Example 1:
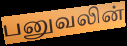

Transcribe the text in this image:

பனுவலின்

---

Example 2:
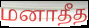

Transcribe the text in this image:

மனாதீத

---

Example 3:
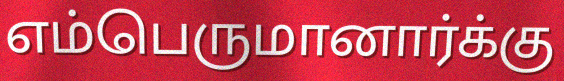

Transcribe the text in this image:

எம்பெருமானார்க்கு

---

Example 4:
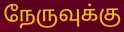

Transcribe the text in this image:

நேருவுக்கு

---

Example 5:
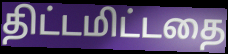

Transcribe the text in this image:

திட்டமிட்டதை